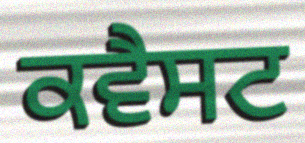
ਕਵੈਸਟ